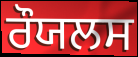
ਰੌਯਲਸ